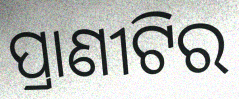
ପ୍ରାଣୀଟିର